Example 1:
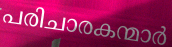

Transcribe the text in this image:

പരിചാരകന്മാർ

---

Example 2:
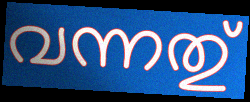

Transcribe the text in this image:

വന്നതു്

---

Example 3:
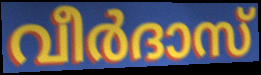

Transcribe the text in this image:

വീർദാസ്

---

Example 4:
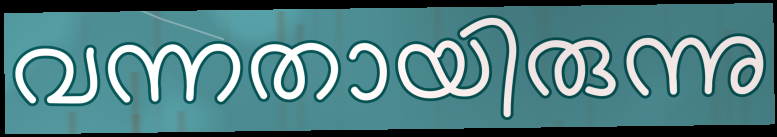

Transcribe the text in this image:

വന്നതായിരുന്നു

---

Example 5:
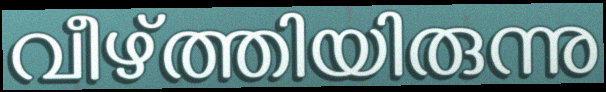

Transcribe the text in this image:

വീഴ്ത്തിയിരുന്നു